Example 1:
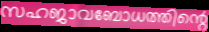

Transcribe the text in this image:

സഹജാവബോധത്തിന്റെ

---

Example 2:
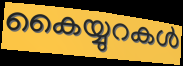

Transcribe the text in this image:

കൈയ്യുറകൾ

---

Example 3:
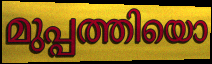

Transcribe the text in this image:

മുപ്പത്തിയൊ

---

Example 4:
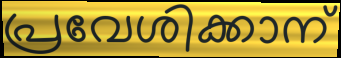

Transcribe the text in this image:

പ്രവേശിക്കാന്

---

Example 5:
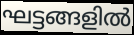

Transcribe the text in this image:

ഘട്ടങ്ങളിൽ